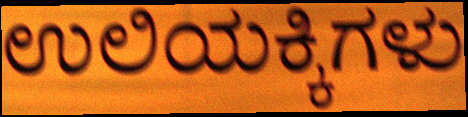
ಉಲಿಯಕ್ಕಿಗಳು